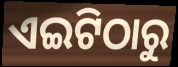
ଏଇଟିଠାରୁ